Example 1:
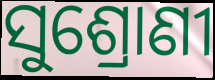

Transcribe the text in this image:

ସୁଶ୍ରୋଣୀ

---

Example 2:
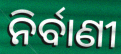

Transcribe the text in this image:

ନିର୍ବାଣୀ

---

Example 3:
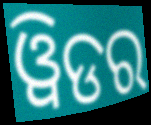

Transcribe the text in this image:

ୱିଡର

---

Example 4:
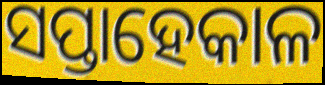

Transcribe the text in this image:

ସପ୍ତାହେକାଳ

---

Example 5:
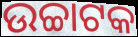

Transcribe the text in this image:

ଉଚ୍ଚାଟକ